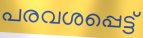
പരവശപ്പെട്ട്